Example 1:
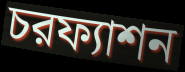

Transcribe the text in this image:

চরফ্যাশন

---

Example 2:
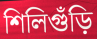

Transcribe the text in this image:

শিলিগুঁড়ি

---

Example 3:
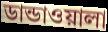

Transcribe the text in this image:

ডান্ডাওয়ালা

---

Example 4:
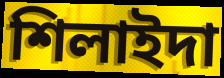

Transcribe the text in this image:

শিলাইদা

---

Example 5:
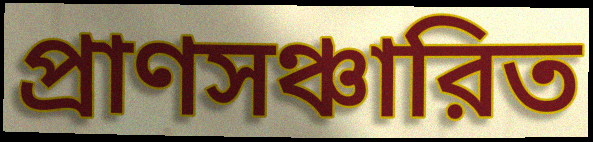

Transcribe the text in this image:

প্রাণসঞ্চারিত